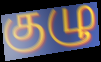
குழு